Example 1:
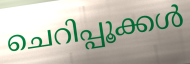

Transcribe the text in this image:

ചെറിപ്പൂക്കൾ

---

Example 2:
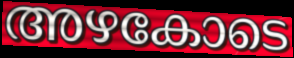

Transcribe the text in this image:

അഴകോടെ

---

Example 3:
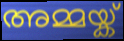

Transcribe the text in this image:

അമ്മയ്ക്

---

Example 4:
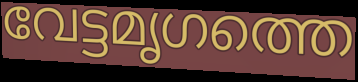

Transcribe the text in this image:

വേട്ടമൃഗത്തെ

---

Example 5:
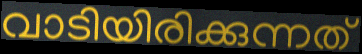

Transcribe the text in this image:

വാടിയിരിക്കുന്നത്